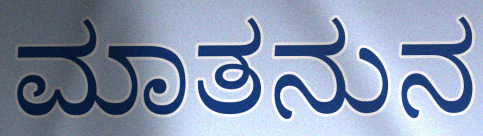
ಮಾತನುನ